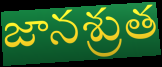
జానశ్రుత